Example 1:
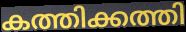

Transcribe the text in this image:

കത്തിക്കത്തി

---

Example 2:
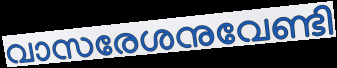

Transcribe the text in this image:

വാസരേശനുവേണ്ടി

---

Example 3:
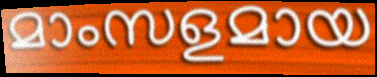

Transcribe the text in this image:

മാംസളമായ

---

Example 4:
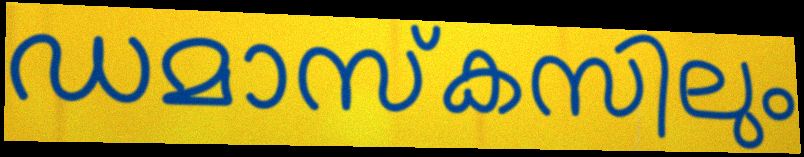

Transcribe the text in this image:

ഡമാസ്കസിലും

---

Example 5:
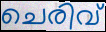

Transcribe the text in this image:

ചെരിവ്